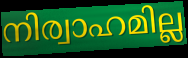
നിര്വാഹമില്ല